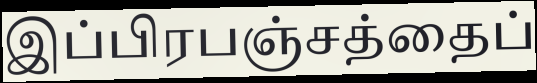
இப்பிரபஞ்சத்தைப்